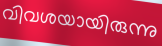
വിവശയായിരുന്നു